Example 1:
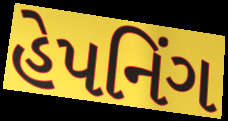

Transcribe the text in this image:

હેપનિંગ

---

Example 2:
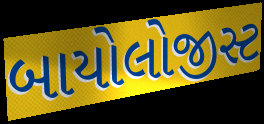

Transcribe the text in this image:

બાયોલોજીસ્ટ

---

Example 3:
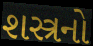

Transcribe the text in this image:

શસ્ત્રનો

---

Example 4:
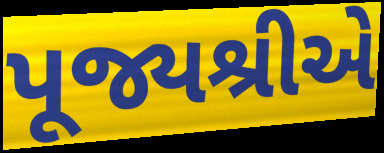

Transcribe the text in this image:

પૂજ્યશ્રીએ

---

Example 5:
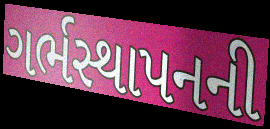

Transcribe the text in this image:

ગર્ભસ્થાપનની